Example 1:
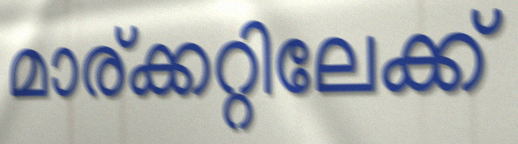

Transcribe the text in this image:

മാര്ക്കറ്റിലേക്ക്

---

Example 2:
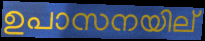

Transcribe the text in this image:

ഉപാസനയില്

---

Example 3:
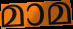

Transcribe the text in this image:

മാമ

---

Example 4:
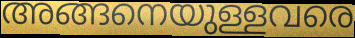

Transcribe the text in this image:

അങ്ങനെയുള്ളവരെ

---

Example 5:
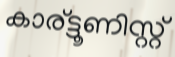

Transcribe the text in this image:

കാര്ട്ടൂണിസ്റ്റ്